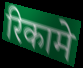
रिकामे